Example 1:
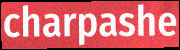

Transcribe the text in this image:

charpashe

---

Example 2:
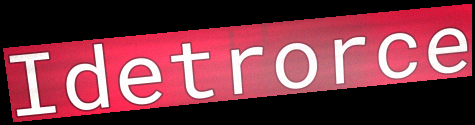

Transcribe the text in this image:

Idetrorce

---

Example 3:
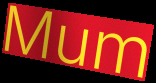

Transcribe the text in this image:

Mum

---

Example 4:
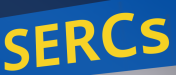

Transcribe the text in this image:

SERCs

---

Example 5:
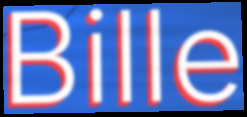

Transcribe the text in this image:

Bille